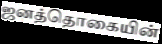
ஜனத்தொகையின்